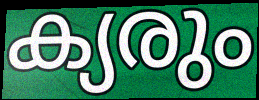
ക്യരും